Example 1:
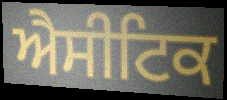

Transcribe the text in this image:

ਐਸੀਟਿਕ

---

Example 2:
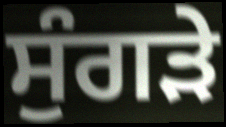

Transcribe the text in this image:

ਸੁੰਗੜੇ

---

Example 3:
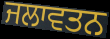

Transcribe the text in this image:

ਜਲਾਵਤਨ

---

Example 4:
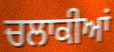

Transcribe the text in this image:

ਚਲਾਕੀਆਂ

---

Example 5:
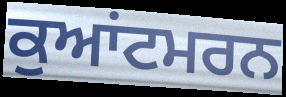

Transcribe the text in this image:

ਕੁਆਂਟਮਰਨ